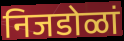
निजडोळां